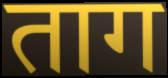
ताग